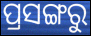
ପ୍ରସଙ୍ଗରୁ